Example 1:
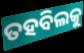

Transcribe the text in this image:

ତହବିଲକୁ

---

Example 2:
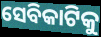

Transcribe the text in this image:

ସେବିକାଟିକୁ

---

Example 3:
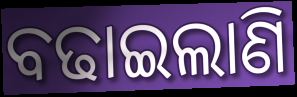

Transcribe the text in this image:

ବଢାଇଲାଣି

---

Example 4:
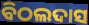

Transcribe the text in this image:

ବିଠଲଦାସ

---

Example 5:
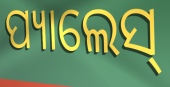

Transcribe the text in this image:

ପ୍ୟାଲେସ୍